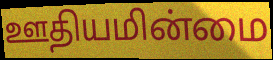
ஊதியமின்மை